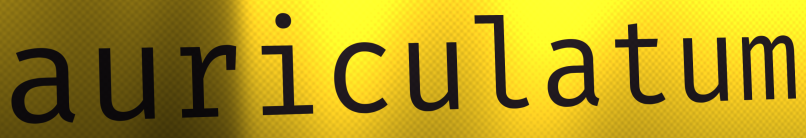
auriculatum